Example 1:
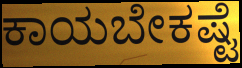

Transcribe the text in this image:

ಕಾಯಬೇಕಷ್ಟೆ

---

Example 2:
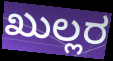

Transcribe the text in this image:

ಖುಲ್ಲರ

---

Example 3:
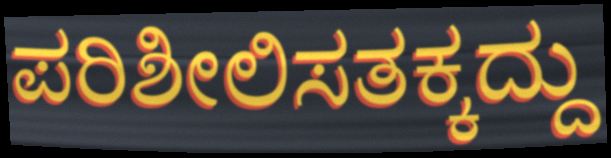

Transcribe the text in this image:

ಪರಿಶೀಲಿಸತಕ್ಕದ್ದು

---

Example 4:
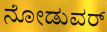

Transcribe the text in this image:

ನೋಡುವರ್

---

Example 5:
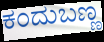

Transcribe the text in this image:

ಕಂದುಬಣ್ಣ